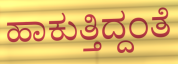
ಹಾಕುತ್ತಿದ್ದಂತೆ